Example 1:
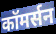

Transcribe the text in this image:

कॉमर्सन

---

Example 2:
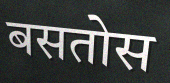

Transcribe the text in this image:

बसतोस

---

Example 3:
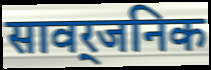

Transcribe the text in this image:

सावर्जनिक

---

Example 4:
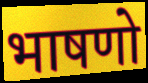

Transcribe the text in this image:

भाषणो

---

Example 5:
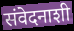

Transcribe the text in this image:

संवेदनाशी